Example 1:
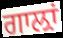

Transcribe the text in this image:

ਗਾਲ਼ਾਂ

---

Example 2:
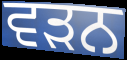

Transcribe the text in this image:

ਵੜਨ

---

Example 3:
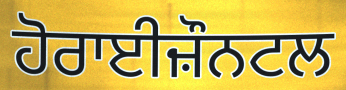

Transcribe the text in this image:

ਹੋਰਾਈਜ਼ੌਨਟਲ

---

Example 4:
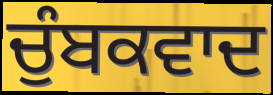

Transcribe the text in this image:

ਚੁੰਬਕਵਾਦ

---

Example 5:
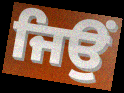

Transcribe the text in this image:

ਜਿਉਂ